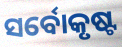
ସର୍ବୋକୃଷ୍ଟ